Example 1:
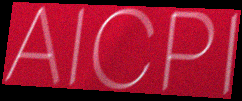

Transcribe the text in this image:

AICPI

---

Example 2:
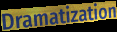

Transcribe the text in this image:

Dramatization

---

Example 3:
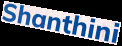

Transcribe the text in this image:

Shanthini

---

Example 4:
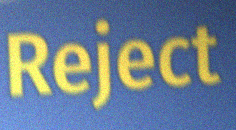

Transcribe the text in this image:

Reject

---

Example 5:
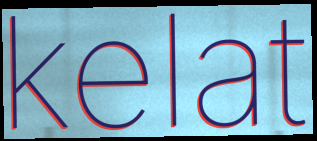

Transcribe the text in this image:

kelat